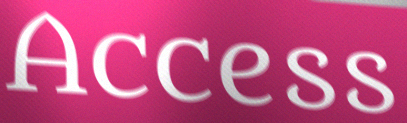
Access